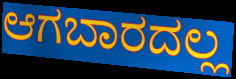
ಆಗಬಾರದಲ್ಲ